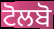
ਟੋਲਬੋ